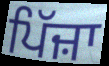
ਪਿੱਜ਼ਾ